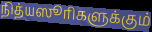
நித்யஸூரிகளுக்கும்